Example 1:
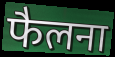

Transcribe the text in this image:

फैलना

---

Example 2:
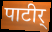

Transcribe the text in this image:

पाटीर्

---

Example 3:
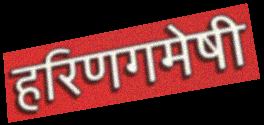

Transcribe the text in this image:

हरिणगमेषी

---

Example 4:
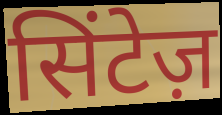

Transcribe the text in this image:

सिंटेज़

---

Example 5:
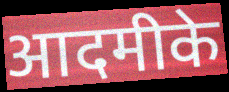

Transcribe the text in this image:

आदमीके